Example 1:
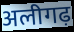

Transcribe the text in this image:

अलीगढ़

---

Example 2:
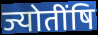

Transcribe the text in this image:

ज्योतींषि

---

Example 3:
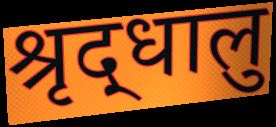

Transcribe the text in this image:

श्रृद्धालु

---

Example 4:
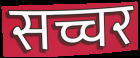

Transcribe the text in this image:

सच्चर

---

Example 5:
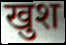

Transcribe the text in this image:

खुश